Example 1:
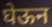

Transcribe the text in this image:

घेऊन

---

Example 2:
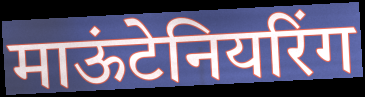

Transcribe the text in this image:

माऊंटेनियरिंग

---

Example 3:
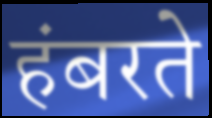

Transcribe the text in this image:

हंबरते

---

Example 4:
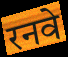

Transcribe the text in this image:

रनवे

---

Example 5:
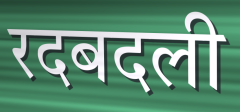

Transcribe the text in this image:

रदबदली